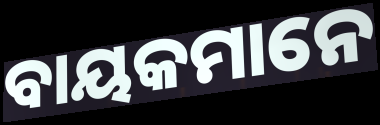
ବାୟକମାନେ